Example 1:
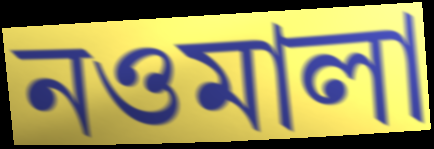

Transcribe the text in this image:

নওমালা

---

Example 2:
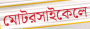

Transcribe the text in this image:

মোটরসাইকেলে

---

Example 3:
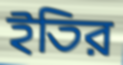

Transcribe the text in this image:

ইতির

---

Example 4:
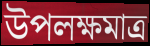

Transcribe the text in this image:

উপলক্ষমাত্র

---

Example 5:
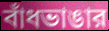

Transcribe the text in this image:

বাঁধভাঙার